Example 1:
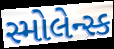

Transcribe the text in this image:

સ્મોલેન્સ્ક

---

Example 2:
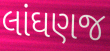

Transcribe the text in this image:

લાંઘણજ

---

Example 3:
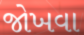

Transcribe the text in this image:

જોખવા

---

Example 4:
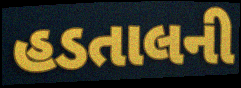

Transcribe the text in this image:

હડતાલની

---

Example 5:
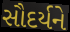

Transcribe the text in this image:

સૌદર્યને